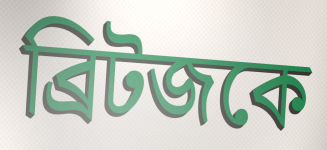
ব্রিটজকে